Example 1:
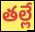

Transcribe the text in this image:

తల్లే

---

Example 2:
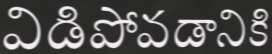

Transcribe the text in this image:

విడిపోవడానికి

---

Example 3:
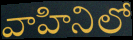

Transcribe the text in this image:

వాహినిలో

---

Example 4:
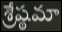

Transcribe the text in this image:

శ్రేష్ఠమా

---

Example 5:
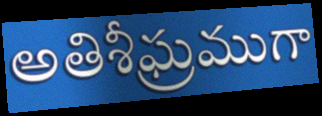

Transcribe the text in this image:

అతిశీఘ్రముగా